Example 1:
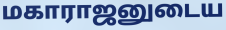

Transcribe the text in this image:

மகாராஜனுடைய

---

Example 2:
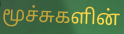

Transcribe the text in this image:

மூச்சுகளின்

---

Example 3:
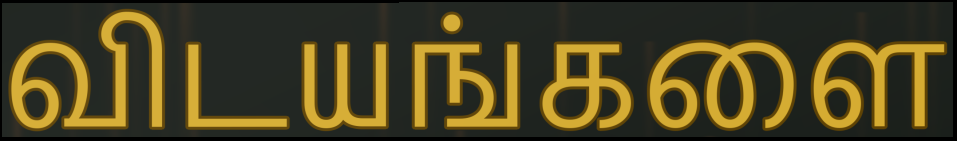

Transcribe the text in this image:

விடயங்களை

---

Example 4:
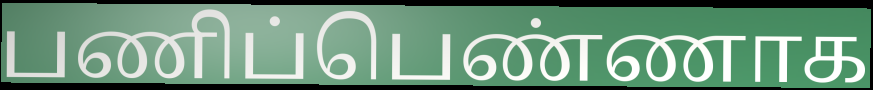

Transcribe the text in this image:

பணிப்பெண்ணாக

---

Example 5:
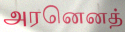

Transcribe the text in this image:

அரனெனத்